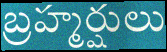
బ్రహ్మర్షులు